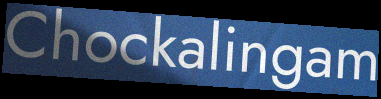
Chockalingam